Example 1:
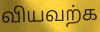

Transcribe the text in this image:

வியவற்க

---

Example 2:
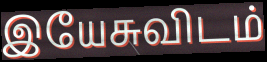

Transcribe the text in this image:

இயேசுவிடம்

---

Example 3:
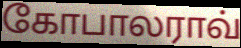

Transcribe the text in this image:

கோபாலராவ்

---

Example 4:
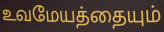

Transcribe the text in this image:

உவமேயத்தையும்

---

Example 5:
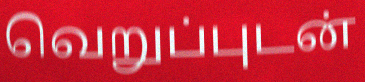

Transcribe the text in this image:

வெறுப்புடன்